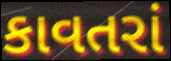
કાવતરાં